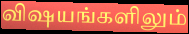
விஷயங்களிலும்